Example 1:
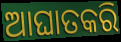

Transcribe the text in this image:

ଆଘାତକରି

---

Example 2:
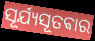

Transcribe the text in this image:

ସୂର୍ଯ୍ଯସୂତଵାର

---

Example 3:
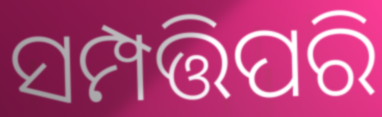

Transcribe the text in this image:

ସମ୍ପତ୍ତିପରି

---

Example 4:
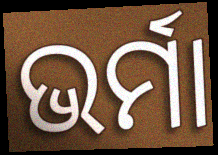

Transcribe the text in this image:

ଭର୍ମା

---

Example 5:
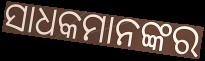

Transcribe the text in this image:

ସାଧକମାନଙ୍କର